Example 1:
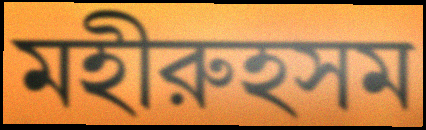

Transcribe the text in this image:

মহীরুহসম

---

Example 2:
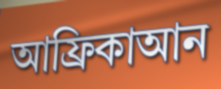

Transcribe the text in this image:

আফ্রিকাআন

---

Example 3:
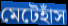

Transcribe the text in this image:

মেটেহাঁস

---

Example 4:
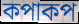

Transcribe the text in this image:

কপাকপ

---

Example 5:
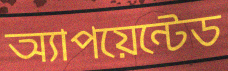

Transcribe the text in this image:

অ্যাপয়েন্টেড